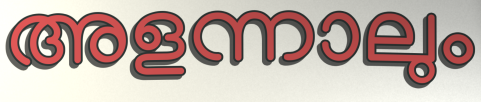
അളന്നാലും